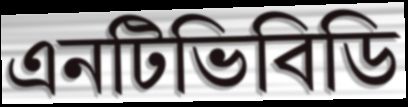
এনটিভিবিডি